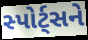
સ્પોર્ટ્સને